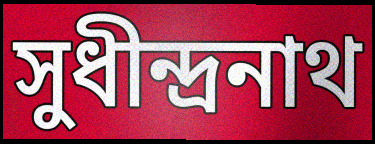
সুধীন্দ্রনাথ